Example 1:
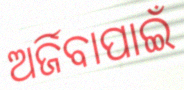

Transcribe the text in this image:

ଅର୍ଜିବାପାଇଁ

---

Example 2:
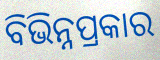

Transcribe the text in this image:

ବିଭିନ୍ନପ୍ରକାର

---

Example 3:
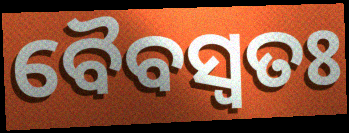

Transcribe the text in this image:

ବୈବସ୍ଵତଃ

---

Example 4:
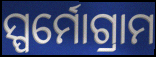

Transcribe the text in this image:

ସ୍ପର୍ମୋଗ୍ରାମ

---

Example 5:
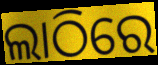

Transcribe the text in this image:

ଲାଠିରେ